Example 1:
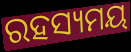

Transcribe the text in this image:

ରହସ୍ୟମୟ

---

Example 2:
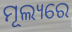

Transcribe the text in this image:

ମୂଲ୍ୟରେ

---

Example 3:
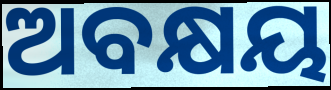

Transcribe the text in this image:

ଅବକ୍ଷୟ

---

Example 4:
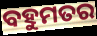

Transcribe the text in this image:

ବହୁମତର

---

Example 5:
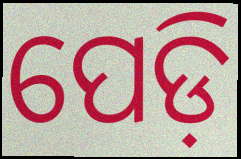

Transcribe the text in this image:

ପେଡ଼ି